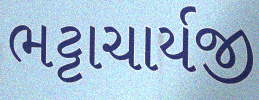
ભટ્ટાચાર્યજી